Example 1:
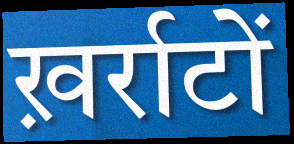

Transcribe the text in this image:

ख़र्राटों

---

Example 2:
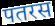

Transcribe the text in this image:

पतरस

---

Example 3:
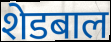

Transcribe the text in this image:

शेडबाल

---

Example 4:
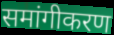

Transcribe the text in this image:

समांगीकरण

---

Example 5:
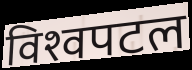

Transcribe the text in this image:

विश्वपटल